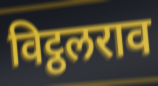
विट्ठलराव